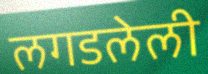
लगडलेली